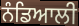
ਨੰਡਿਆਲੀ